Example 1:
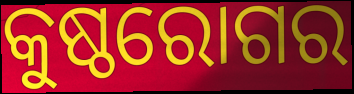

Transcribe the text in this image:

କୁଷ୍ଠରୋଗର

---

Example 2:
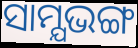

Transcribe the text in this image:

ସାମ୍ଯଭଙ୍ଗ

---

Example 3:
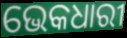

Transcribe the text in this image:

ଭେକଧାରୀ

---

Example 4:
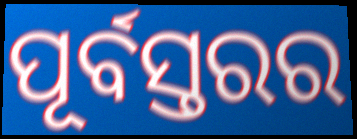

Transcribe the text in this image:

ପୂର୍ବସ୍ତରର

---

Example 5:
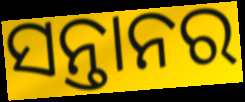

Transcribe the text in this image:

ସନ୍ତାନର